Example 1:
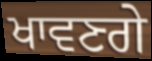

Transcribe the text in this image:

ਖਾਵਣਗੇ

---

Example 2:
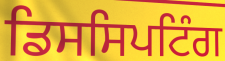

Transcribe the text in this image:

ਡਿਸਸਿਪਟਿੰਗ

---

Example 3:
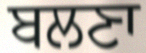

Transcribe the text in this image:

ਬਲਣਾ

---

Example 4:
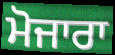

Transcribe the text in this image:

ਮੋਜਾਰਾ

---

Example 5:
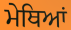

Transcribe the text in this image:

ਮੇਥਿਆਂ